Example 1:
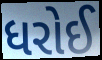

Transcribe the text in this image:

ધરોઈ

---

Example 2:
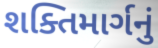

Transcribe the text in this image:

શક્તિમાર્ગનું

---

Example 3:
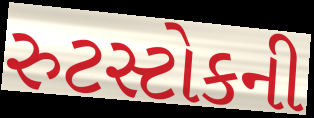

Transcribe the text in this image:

રુટસ્ટોકની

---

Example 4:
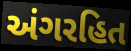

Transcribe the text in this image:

અંગરહિત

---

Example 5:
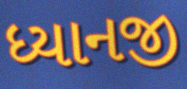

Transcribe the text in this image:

ધ્યાનજી